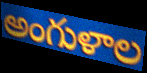
అంగుళాల